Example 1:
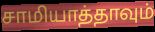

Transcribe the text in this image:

சாமியாத்தாவும்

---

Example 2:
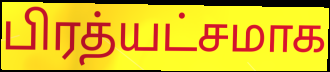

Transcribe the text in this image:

பிரத்யட்சமாக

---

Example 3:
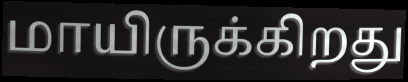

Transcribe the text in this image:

மாயிருக்கிறது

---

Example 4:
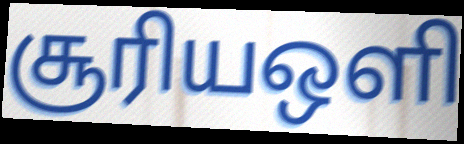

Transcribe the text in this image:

சூரியஒளி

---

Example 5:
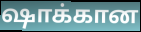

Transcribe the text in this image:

ஷாக்கான